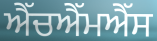
ਐੱਚਐੱਮਐੱਸ